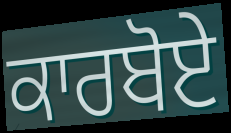
ਕਾਰਬੋਏ